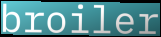
broiler